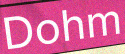
Dohm